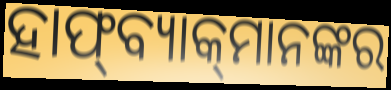
ହାଫ୍‍ବ୍ୟାକ୍‍ମାନଙ୍କର